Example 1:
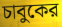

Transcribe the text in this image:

চাবুকের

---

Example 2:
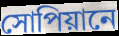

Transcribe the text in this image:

সোপিয়ানে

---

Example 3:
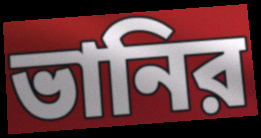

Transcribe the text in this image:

ভানির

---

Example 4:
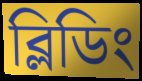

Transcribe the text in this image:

ব্লিডিং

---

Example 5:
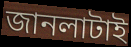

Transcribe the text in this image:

জানলাটাই